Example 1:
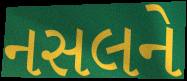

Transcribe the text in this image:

નસલને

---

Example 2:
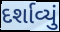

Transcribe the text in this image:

દર્શાવ્યું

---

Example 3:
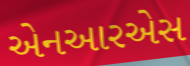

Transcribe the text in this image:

એનઆરએસ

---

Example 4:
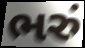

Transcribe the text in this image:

ભરું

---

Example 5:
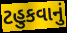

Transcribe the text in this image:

ટહુકવાનું